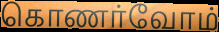
கொணர்வோம்